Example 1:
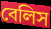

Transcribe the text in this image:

বেলিস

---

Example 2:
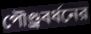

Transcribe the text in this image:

পৌণ্ড্রবর্ধনের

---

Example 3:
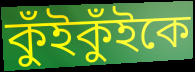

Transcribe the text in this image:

কুঁইকুঁইকে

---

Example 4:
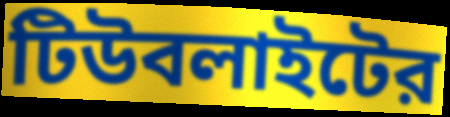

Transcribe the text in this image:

টিউবলাইটের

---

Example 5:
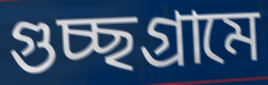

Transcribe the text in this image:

গুচ্ছগ্রামে